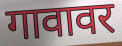
गावावर